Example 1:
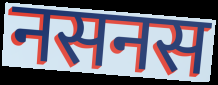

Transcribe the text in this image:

नसनस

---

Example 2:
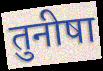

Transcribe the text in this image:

तुनीषा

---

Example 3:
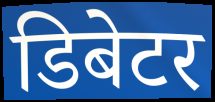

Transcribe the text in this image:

डिबेटर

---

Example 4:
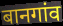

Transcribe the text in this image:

बानगांव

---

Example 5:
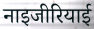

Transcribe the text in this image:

नाइजीरियाई